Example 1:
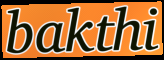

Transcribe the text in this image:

bakthi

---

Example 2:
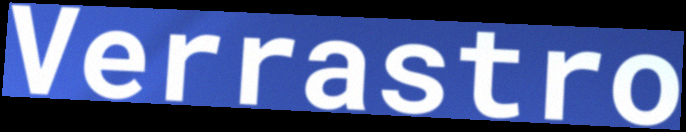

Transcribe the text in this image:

Verrastro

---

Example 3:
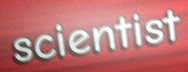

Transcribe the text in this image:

scientist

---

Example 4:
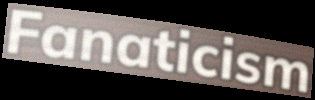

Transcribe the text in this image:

Fanaticism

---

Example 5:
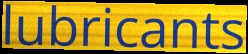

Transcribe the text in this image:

lubricants